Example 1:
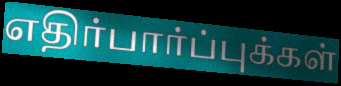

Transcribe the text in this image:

எதிர்பார்ப்புக்கள்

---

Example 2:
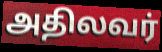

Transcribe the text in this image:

அதிலவர்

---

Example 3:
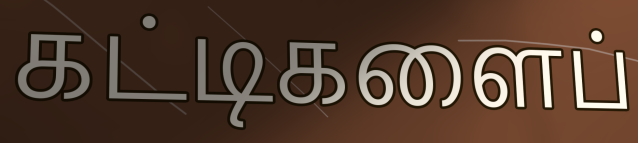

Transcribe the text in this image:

கட்டிகளைப்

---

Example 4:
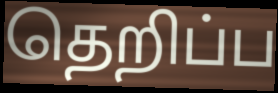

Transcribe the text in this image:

தெறிப்ப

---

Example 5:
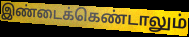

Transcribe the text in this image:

இண்டைக்கெண்டாலும்